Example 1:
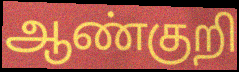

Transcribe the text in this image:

ஆண்குறி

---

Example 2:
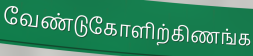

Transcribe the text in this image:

வேண்டுகோளிற்கிணங்க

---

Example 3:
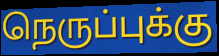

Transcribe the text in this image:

நெருப்புக்கு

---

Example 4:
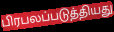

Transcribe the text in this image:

பிரபலப்படுத்தியது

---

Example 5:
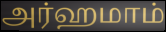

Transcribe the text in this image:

அர்ஹமாம்